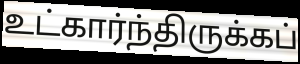
உட்கார்ந்திருக்கப்